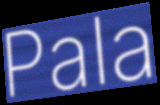
Pala